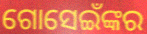
ଗୋସେଇଁଙ୍କର